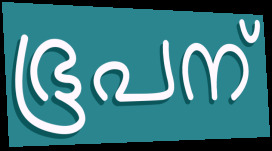
ഭൂപന്